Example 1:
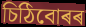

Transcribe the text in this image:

চিঠিবোৰৰ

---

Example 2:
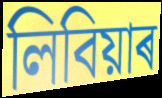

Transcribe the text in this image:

লিবিয়াৰ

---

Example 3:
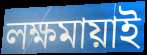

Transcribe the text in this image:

লক্ষমায়াই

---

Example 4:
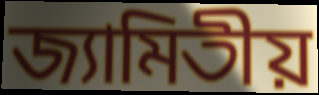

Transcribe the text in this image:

জ্যামিতীয়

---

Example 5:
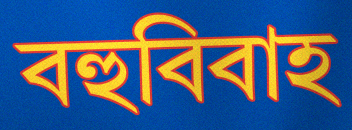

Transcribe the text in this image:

বহুবিবাহ